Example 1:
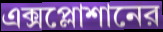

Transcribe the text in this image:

এক্সপ্লোশানের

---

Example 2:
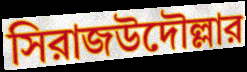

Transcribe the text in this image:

সিরাজউদৌল্লার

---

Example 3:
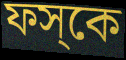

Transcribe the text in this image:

ফস্‌কে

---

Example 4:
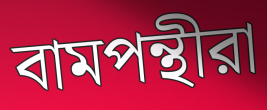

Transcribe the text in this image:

বামপন্থীরা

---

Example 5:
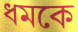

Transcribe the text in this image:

ধমকে